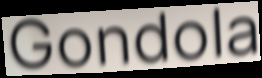
Gondola